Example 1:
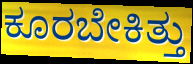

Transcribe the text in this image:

ಕೂರಬೇಕಿತ್ತು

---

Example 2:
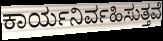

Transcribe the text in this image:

ಕಾರ್ಯನಿರ್ವಹಿಸುತ್ತವೆ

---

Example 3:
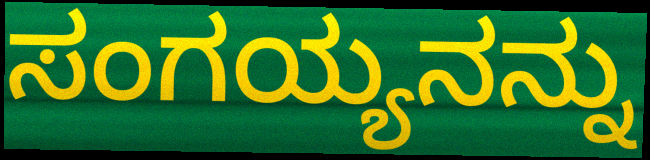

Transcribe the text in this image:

ಸಂಗಯ್ಯನನ್ನು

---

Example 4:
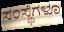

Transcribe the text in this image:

ಸಂಸ್ಥೆಗಳೂ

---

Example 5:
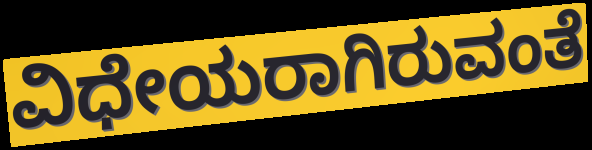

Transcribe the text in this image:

ವಿಧೇಯರಾಗಿರುವಂತೆ